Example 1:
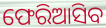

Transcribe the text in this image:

ଫେରିଆସିବ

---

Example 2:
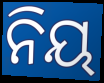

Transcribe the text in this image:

ନିୟ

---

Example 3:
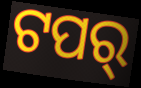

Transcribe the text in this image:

ଟପର୍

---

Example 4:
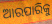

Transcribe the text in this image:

ଆରପାରିକୁ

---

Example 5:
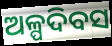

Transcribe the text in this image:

ଅଳ୍ପଦିବସ